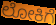
ಲೋಕಿಗೆ